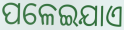
ପଳେଇଯାଏ